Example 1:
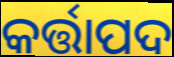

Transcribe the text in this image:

କର୍ତ୍ତାପଦ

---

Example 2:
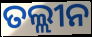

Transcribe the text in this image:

ତଲ୍ଲୀନ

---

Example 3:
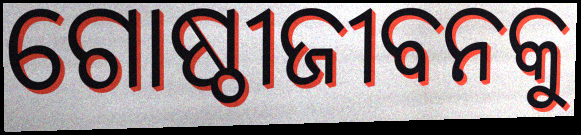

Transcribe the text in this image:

ଗୋଷ୍ଠୀଜୀବନକୁ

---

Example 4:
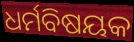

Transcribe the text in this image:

ଧର୍ମବିଷୟକ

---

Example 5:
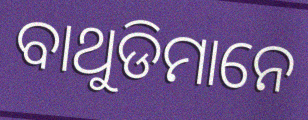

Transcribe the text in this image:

ବାଥୁଡିମାନେ